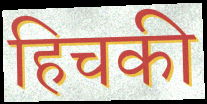
हिचकी